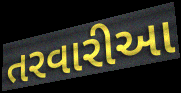
તરવારીઆ